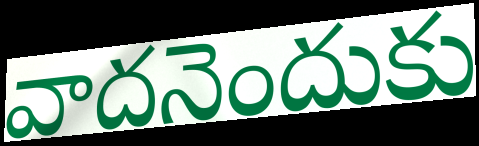
వాదనెందుకు